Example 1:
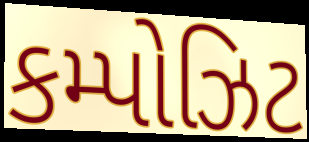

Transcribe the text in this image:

કમ્પોઝિટ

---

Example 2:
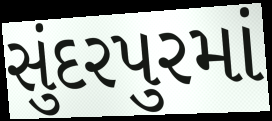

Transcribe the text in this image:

સુંદરપુરમાં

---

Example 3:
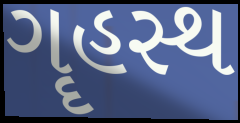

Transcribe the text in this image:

ગૄહસ્થ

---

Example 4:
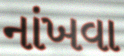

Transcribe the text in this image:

નાંખવા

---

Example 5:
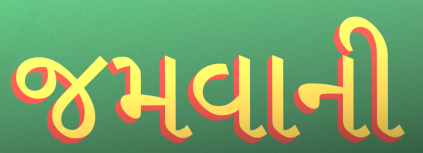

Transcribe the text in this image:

જમવાની